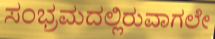
ಸಂಭ್ರಮದಲ್ಲಿರುವಾಗಲೇ